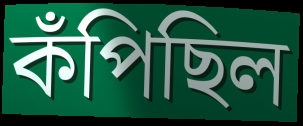
কঁপিছিল